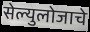
सेल्युलोजाचे